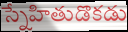
స్నేహితుడొకడు